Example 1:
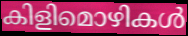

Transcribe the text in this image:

കിളിമൊഴികൾ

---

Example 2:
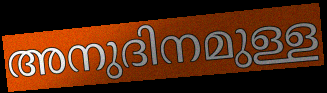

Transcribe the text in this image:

അനുദിനമുള്ള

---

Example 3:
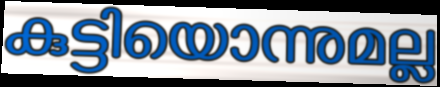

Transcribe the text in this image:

കുട്ടിയൊന്നുമല്ല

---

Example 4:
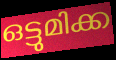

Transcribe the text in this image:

ഒട്ടുമിക്ക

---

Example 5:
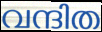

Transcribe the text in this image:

വന്ദിത